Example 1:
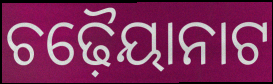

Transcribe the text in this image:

ଚଢ଼ୈୟାନାଟ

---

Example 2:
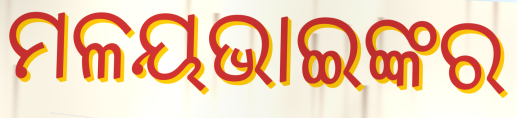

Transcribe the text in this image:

ମଳୟଭାଇଙ୍କର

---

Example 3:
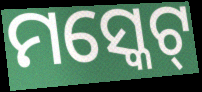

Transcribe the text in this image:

ମସ୍କେଟ୍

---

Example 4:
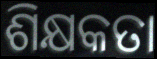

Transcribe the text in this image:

ଶିକ୍ଷକତା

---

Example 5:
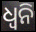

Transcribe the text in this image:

ଧ୍ୱନି